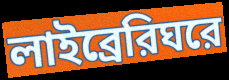
লাইব্রেরিঘরে